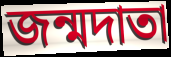
জন্মদাতা